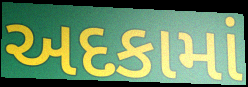
અદકામાં